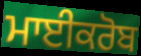
ਮਾਈਕਰੋਬ